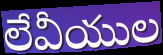
లేవీయుల